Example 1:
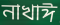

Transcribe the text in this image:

নাখাঈ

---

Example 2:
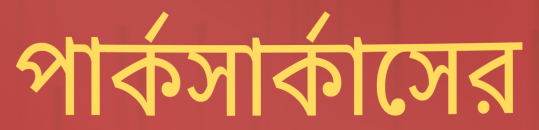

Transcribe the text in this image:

পার্কসার্কাসের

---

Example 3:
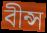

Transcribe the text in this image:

বীন্স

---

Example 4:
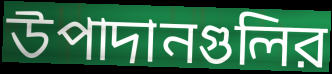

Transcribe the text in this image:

উপাদানগুলির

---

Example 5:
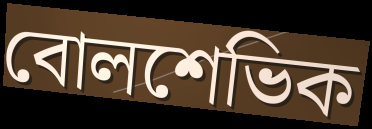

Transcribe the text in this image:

বোলশেভিক